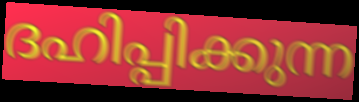
ദഹിപ്പിക്കുന്ന